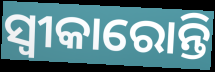
ସ୍ଵୀକାରୋନ୍ତି